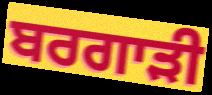
ਬਰਗਾੜੀ